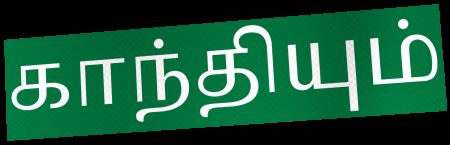
காந்தியும்